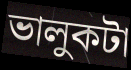
ভালুকটা